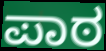
ಪಾಠ